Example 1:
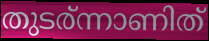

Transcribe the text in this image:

തുടര്ന്നാണിത്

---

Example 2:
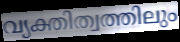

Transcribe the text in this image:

വ്യക്തിത്വത്തിലും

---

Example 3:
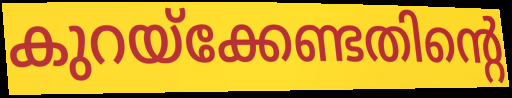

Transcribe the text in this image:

കുറയ്ക്കേണ്ടതിന്റെ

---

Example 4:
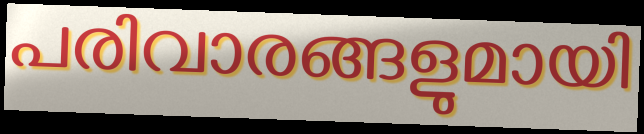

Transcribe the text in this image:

പരിവാരങ്ങളുമായി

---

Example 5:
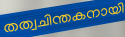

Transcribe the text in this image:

തത്വചിന്തകനായി